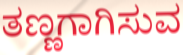
ತಣ್ಣಗಾಗಿಸುವ